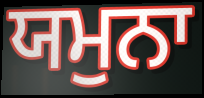
ਯਮੁਨਾ